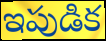
ఇపుడిక